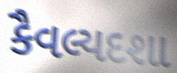
કૈવલ્યદશા